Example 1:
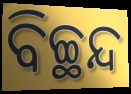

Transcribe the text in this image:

ବିଚ୍ଛନ୍ଦ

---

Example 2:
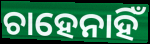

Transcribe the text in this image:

ଚାହେନାହିଁ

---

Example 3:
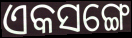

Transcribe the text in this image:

ଏକସଙ୍ଗେ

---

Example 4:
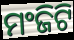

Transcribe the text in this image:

ମଂଜିଟି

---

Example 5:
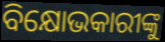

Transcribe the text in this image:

ବିକ୍ଷୋଭକାରୀଙ୍କୁ